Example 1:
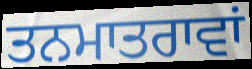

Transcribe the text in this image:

ਤਨਮਾਤਰਾਵਾਂ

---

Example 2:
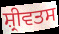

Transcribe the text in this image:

ਸ਼੍ਰੀਵਤਸ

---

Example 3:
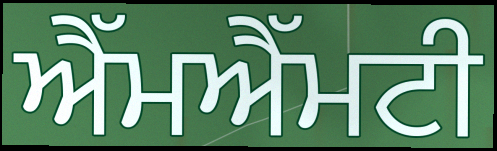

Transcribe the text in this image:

ਐੱਮਐੱਮਟੀ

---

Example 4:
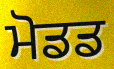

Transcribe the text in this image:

ਮੋਡਡ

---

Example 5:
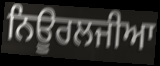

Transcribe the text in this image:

ਨਿਊਰਲਜੀਆ